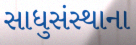
સાધુસંસ્થાના